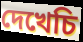
দেখেচি